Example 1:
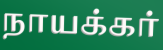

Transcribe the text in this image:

நாயக்கர்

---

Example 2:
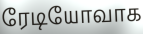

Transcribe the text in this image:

ரேடியோவாக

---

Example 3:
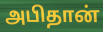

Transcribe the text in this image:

அபிதான்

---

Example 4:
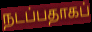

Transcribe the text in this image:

நடப்பதாகப்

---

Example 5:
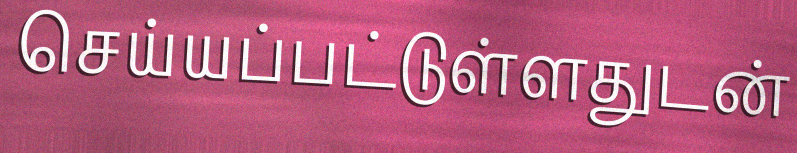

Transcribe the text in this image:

செய்யப்பட்டுள்ளதுடன்